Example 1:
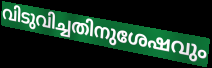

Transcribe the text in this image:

വിടുവിച്ചതിനുശേഷവും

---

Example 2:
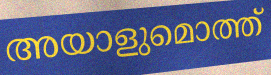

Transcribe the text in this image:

അയാളുമൊത്ത്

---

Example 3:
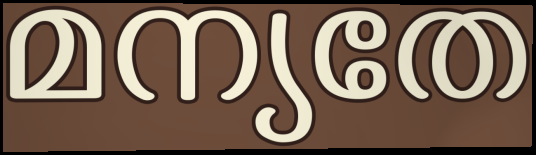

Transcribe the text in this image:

മന്യതേ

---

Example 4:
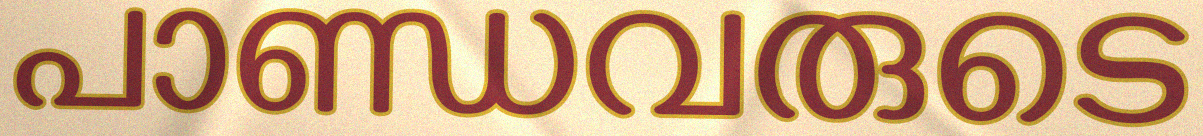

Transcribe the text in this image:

പാണ്ഡവരുടെ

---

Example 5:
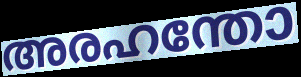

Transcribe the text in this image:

അരഹന്തോ